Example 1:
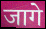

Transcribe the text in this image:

जागे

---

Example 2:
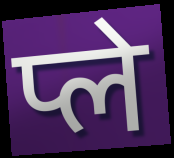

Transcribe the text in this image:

प्ले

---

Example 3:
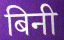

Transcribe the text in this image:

बिनी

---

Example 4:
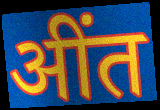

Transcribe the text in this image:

अींत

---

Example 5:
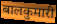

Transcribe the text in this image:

बालकुमारी